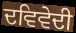
ਦਵਿਵੇਦੀ